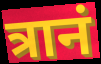
त्रानं